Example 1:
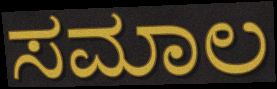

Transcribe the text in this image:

ಸಮಾಲ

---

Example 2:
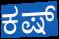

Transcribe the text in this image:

ಕಷ್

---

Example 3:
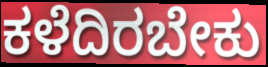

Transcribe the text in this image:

ಕಳೆದಿರಬೇಕು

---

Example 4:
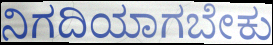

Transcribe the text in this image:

ನಿಗದಿಯಾಗಬೇಕು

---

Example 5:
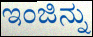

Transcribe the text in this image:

ಇಂಜಿನ್ನು